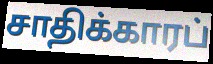
சாதிக்காரப்